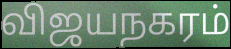
விஜயநகரம்